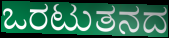
ಒರಟುತನದ